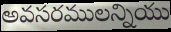
అవసరములన్నియు